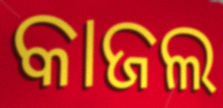
କାଜଲ